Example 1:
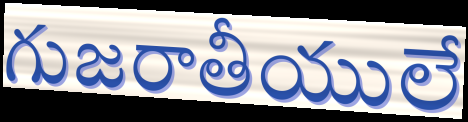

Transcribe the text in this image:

గుజరాతీయులే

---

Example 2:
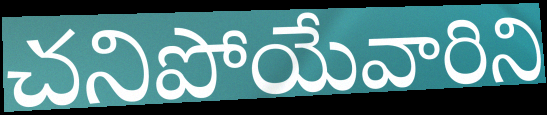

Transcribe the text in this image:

చనిపోయేవారిని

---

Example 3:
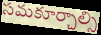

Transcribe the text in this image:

సమకూర్చాల్సి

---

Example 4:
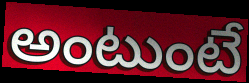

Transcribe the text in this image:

అంటుంటే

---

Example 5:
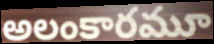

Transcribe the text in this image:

అలంకారమూ